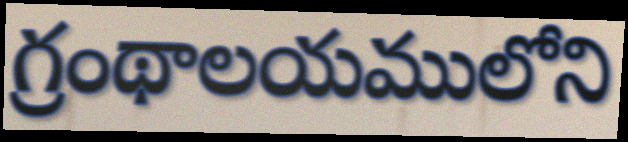
గ్రంథాలయములోని